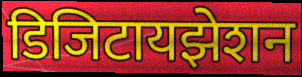
डिजिटायझेशन